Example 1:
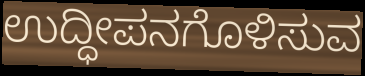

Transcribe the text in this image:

ಉದ್ಧೀಪನಗೊಳಿಸುವ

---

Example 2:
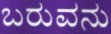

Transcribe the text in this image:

ಬರುವನು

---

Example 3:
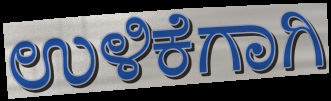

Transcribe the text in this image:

ಉಳಿಕೆಗಾಗಿ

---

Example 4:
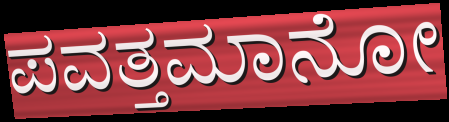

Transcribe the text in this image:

ಪವತ್ತಮಾನೋ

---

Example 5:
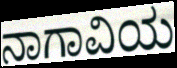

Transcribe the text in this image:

ನಾಗಾವಿಯ